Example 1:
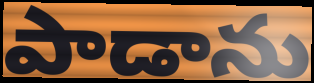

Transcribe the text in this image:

పాడాను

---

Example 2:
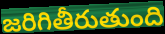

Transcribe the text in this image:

జరిగితీరుతుంది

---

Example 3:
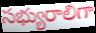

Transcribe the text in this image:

సభ్యురాలిగా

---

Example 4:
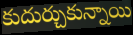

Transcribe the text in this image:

కుదుర్చుకున్నాయి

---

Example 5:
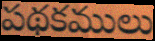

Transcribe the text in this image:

పథకములు